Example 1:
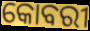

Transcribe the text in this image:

କୋବରୀ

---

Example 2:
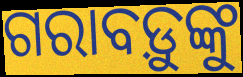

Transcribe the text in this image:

ଗରାବଡ଼ୁଙ୍କୁ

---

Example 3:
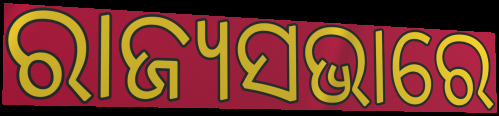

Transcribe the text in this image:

ରାଜ୍ୟସଭାରେ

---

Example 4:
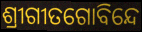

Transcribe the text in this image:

ଶ୍ରୀଗୀତଗୋବିନ୍ଦେ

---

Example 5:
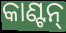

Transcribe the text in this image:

କାଣ୍ଟନ୍